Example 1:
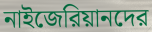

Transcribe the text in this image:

নাইজেরিয়ানদের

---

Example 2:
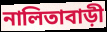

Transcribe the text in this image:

নালিতাবাড়ী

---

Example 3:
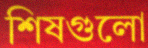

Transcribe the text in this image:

শিষগুলো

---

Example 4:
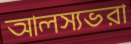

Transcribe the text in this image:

আলস্যভরা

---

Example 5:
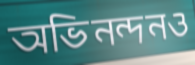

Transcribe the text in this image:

অভিনন্দনও